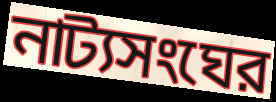
নাট্যসংঘের